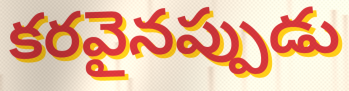
కరవైనప్పుడు